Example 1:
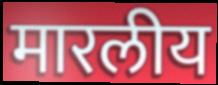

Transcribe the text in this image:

मारलीय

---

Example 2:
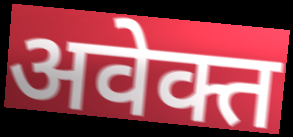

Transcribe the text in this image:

अवेक्त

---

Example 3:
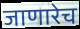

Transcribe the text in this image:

जाणारेच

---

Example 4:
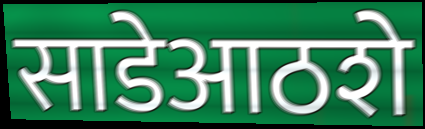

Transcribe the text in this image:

साडेआठशे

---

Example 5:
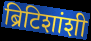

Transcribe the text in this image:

ब्रिटिशांशी